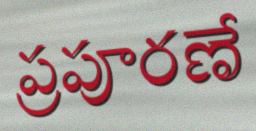
ప్రపూరణే